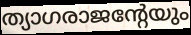
ത്യാഗരാജന്റേയും